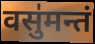
वसु॑मन्तं